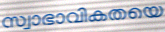
സ്വാഭാവികതയെ